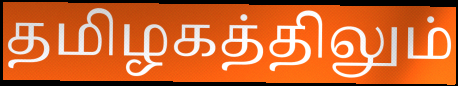
தமிழகத்திலும்